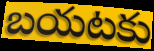
బయటకు